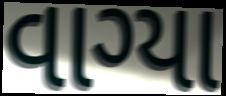
વાગ્યા